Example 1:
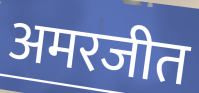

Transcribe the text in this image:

अमरजीत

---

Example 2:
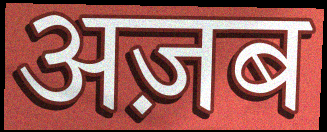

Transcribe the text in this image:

अज़ब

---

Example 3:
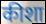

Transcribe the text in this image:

कीशा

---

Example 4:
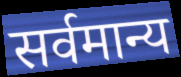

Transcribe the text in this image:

सर्वमान्य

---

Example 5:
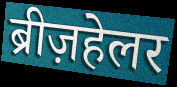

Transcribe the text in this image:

ब्रीज़हेलर